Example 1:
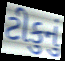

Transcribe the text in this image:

ટીકુનું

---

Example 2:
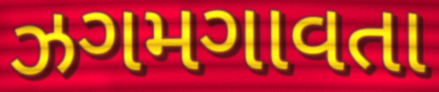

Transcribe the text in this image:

ઝગમગાવતા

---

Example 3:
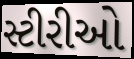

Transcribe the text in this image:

સ્ટીરીઓ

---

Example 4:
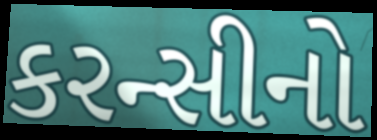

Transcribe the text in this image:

કરન્સીનો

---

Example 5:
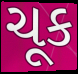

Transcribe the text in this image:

ચૂક